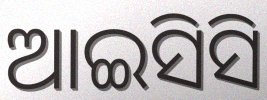
ଆଇସିସି